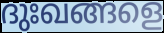
ദുഃഖങ്ങളെ